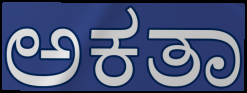
ಅಕತಾ